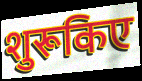
शुरूकिए